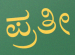
ಪ್ರತೀ